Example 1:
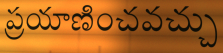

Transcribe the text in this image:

ప్రయాణించవచ్చు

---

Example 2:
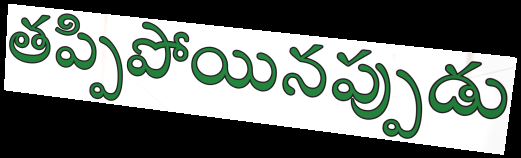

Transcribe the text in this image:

తప్పిపోయినప్పుడు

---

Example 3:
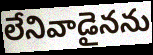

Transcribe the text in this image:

లేనివాడైనను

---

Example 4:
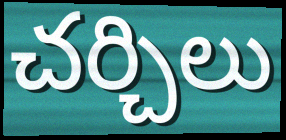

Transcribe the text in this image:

చర్చిలు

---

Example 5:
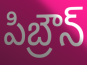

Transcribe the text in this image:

పిబ్రౌన్